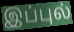
இப்புல்